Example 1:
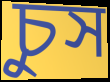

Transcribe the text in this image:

চুস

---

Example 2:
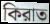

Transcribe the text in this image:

কিরাত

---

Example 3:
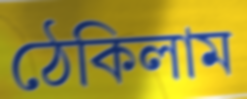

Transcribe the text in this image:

ঠেকিলাম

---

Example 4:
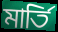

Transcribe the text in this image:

মার্তি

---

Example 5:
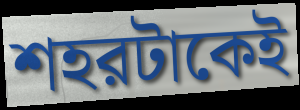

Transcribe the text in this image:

শহরটাকেই